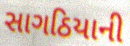
સાગઠિયાની